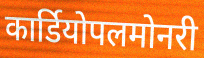
कार्डियोपलमोनरी